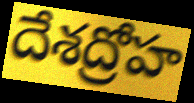
దేశద్రోహ